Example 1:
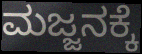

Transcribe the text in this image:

ಮಜ್ಜನಕ್ಕೆ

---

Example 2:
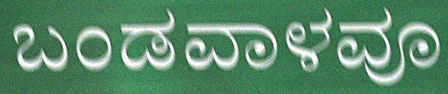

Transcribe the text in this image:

ಬಂಡವಾಳವೂ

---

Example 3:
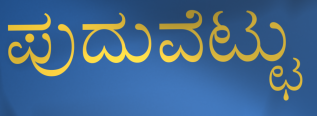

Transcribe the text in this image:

ಪುದುವೆಟ್ಟು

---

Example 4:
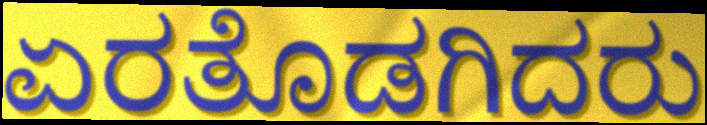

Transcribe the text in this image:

ಏರತೊಡಗಿದರು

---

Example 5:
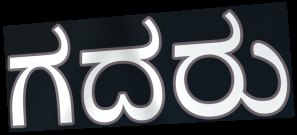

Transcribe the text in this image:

ಗದರು